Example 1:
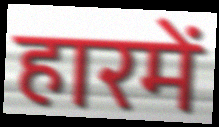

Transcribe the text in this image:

हारमें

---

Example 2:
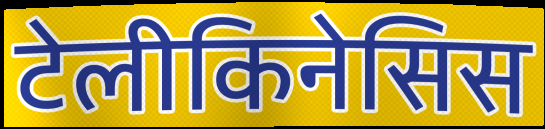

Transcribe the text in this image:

टेलीकिनेसिस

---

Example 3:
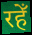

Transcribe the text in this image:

रहेँ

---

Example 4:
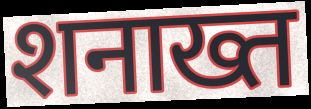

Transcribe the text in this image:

शनाख्त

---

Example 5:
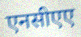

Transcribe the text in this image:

एनसीएए